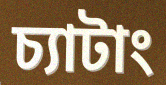
চ্যাটাং